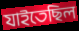
যাইতেছিল